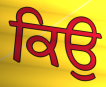
ਕਿਉ